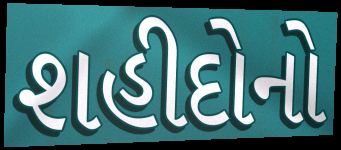
શહીદોનો